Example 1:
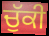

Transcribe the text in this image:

ਚੁੱਕੀ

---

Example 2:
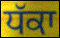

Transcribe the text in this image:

ਧੱਕਾ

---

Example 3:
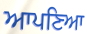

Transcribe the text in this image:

ਆਪਣਿਆ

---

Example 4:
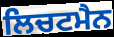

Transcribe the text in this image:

ਲਿਚਟਮੈਨ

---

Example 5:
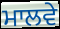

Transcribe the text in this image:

ਮਾਲਵੇ